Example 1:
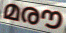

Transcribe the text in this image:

മരൗ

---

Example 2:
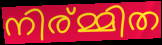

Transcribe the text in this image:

നിര്മ്മിത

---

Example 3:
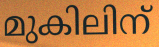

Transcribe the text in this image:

മുകിലിന്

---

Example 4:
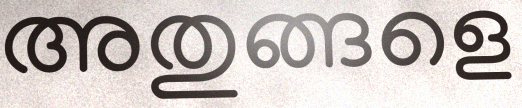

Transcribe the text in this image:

അതുങ്ങളെ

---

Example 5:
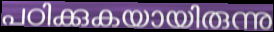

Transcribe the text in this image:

പഠിക്കുകയായിരുന്നു